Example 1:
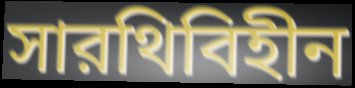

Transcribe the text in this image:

সারথিবিহীন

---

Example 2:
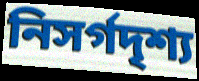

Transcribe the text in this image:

নিসর্গদৃশ্য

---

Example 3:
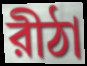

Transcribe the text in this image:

রীঠা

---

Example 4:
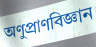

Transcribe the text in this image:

অণুপ্রাণবিজ্ঞান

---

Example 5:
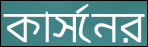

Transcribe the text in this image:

কার্সনের